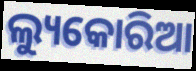
ଲ୍ୟୁକୋରିଆ